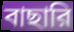
বাছারি